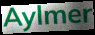
Aylmer